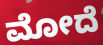
ಮೋದೆ